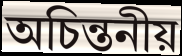
অচিন্তনীয়